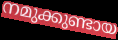
നമുക്കുണ്ടായ